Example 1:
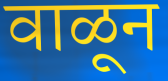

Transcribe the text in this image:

वाळून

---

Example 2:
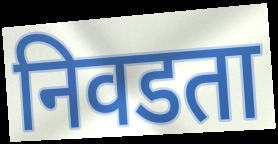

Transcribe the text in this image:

निवडता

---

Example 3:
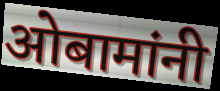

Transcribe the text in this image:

ओबामांनी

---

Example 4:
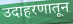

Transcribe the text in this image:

उदाहरणातून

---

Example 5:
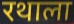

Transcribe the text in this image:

रथाला